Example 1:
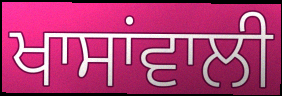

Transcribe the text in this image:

ਖਾਸਾਂਵਾਲੀ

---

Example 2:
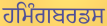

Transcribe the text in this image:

ਹਮਿੰਗਬਰਡਸ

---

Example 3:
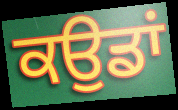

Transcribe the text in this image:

ਕਉਡਾਂ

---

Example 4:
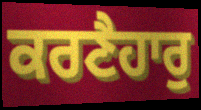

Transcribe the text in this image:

ਕਰਣੈਹਾਰੁ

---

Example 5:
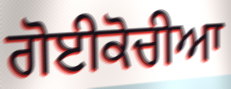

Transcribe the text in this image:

ਗੋਈਕੋਚੀਆ